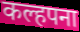
कल्हपना